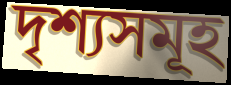
দৃশ্যসমূহ